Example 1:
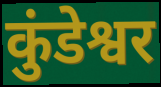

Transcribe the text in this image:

कुंडेश्वर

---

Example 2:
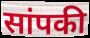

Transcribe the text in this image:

सांपकी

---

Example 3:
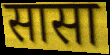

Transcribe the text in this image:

सासा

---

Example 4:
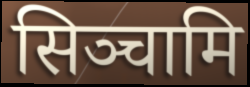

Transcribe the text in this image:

सिञ्चामि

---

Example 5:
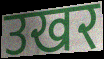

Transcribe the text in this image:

उखर